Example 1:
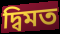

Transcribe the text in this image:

দ্বিমত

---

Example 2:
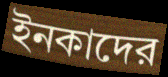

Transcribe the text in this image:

ইনকাদের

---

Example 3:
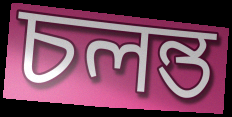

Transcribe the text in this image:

চলন্ত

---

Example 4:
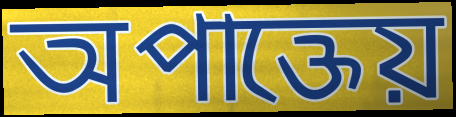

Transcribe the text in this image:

অপাক্তেয়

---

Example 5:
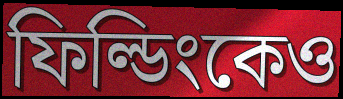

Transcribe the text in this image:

ফিল্ডিংকেও